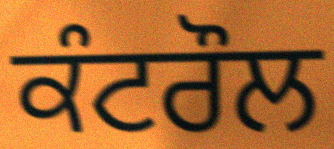
ਕੰਟਰੌਲ